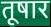
तूषार